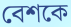
বেশকে